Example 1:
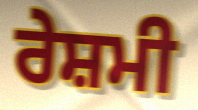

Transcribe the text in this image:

ਰੇਸ਼ਮੀ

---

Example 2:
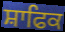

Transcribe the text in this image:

ਸ਼ਾਫਿਕ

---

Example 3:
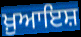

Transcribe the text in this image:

ਖ਼ੁਆਇਸ਼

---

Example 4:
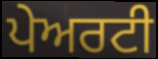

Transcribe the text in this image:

ਪੇਅਰਟੀ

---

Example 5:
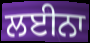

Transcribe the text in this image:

ਲਈਨਾ